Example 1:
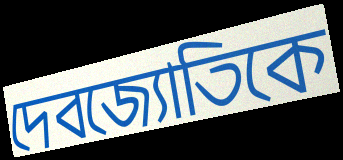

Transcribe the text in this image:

দেবজ্যোতিকে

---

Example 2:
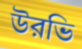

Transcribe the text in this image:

উরভি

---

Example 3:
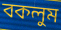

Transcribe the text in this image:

বকলুম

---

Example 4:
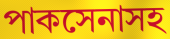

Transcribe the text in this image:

পাকসেনাসহ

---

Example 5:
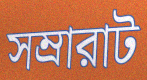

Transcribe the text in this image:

সম্রারাট